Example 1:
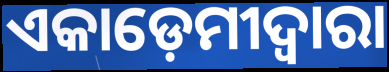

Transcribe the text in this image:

ଏକାଡ଼େମୀଦ୍ଵାରା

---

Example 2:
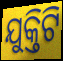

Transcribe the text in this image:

ଯୁକ୍ତିଟି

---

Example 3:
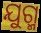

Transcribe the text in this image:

ଯୁଗ୍ମ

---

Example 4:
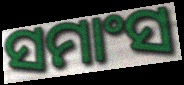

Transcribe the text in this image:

ସମାଂସ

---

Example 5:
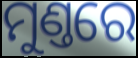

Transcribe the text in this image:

ମୁଣ୍ତରେ